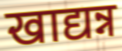
खाद्यन्न